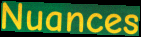
Nuances